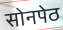
सोनपेठ